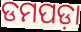
ଡମପଡ଼ା